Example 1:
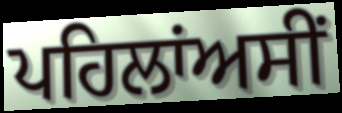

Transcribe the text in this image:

ਪਹਿਲਾਂਅਸੀਂ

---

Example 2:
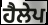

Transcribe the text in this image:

ਹੈਲੇਪ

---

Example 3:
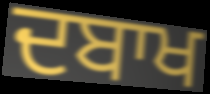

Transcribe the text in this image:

ਦਬਾਖ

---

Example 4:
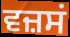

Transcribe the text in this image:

ਵਜ਼ਸਂ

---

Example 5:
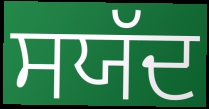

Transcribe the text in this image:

ਸਯੱਦ